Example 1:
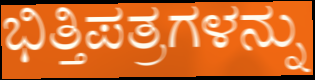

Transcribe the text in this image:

ಭಿತ್ತಿಪತ್ರಗಳನ್ನು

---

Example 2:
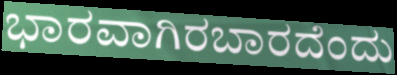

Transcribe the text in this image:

ಭಾರವಾಗಿರಬಾರದೆಂದು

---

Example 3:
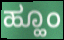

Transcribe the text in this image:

ಹ್ಹೂಂ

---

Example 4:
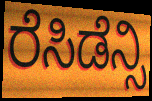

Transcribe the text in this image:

ರೆಸಿಡೆನ್ಸಿ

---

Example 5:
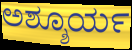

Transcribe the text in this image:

ಅಶ್ಶೂರ್ಯ